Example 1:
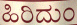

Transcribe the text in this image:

ಹಿರಿದುಂ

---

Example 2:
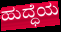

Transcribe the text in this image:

ಹುದ್ಧೆಯ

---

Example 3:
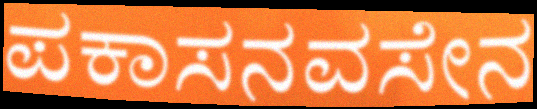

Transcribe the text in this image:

ಪಕಾಸನವಸೇನ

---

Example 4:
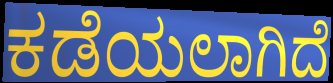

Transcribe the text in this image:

ಕಡೆಯಲಾಗಿದೆ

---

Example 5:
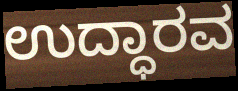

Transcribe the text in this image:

ಉದ್ಧಾರವ